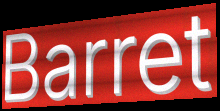
Barret